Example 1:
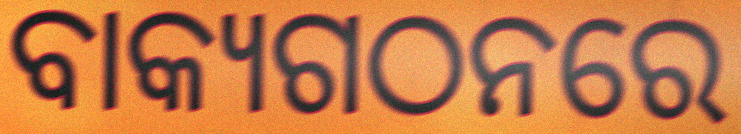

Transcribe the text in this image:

ବାକ୍ୟଗଠନରେ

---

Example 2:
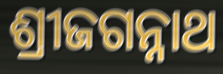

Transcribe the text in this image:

ଶ୍ରୀଜଗନ୍ନାଥ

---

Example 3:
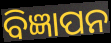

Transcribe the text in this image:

ବିଜ୍ଞାପନ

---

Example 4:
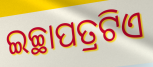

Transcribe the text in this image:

ଇଚ୍ଛାପତ୍ରଟିଏ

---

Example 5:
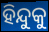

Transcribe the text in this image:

ହିନ୍ଦୁକୁ